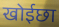
खोईछा